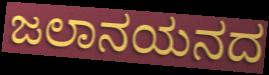
ಜಲಾನಯನದ